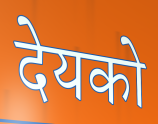
देयको